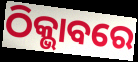
ଠିକ୍ଭାବରେ